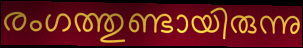
രംഗത്തുണ്ടായിരുന്നു